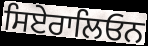
ਸਿਏਰਾਲਿਓਨ